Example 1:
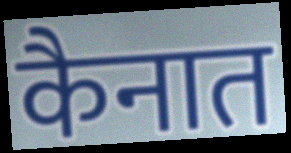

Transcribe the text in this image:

कैनात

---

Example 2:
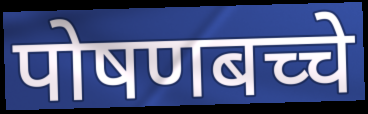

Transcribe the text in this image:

पोषणबच्चे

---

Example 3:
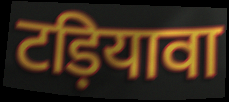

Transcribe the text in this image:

टड़ियावा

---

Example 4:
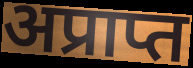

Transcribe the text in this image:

अप्राप्त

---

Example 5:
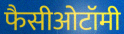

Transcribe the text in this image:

फैसीओटॉमी